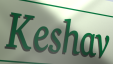
Keshav